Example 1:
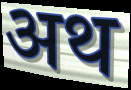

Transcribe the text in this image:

अथ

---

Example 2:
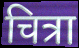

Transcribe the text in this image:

चित्रा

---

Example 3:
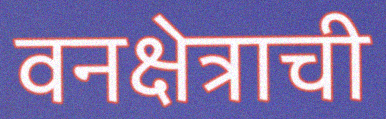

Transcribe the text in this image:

वनक्षेत्राची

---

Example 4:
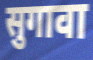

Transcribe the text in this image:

सुगावा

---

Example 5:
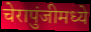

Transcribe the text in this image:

चेरापुंजीमध्ये